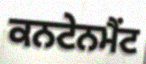
ਕਨਟੇਨਮੈਂਟ